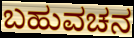
ಬಹುವಚನ